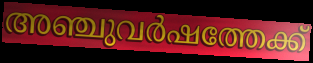
അഞ്ചുവർഷത്തേക്ക്